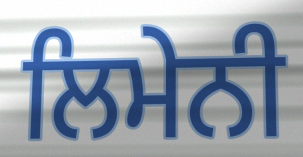
ਲਿਮੇਨੀ